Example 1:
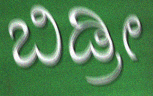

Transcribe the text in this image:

ಬಿಡ್ರೀ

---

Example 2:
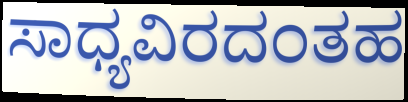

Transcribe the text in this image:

ಸಾಧ್ಯವಿರದಂತಹ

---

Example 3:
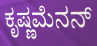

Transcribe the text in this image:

ಕೃಷ್ಣಮೆನನ್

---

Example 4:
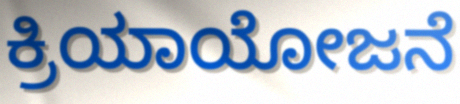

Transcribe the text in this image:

ಕ್ರಿಯಾಯೋಜನೆ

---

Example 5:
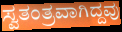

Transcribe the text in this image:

ಸ್ವತಂತ್ರವಾಗಿದ್ದವು